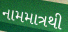
નામમાત્રથી